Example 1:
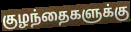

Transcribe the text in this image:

குழந்தைகளுக்கு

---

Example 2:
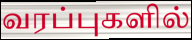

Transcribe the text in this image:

வரப்புகளில்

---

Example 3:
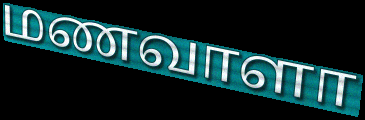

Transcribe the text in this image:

மணவாளா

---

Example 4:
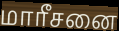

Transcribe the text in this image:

மாரீசனை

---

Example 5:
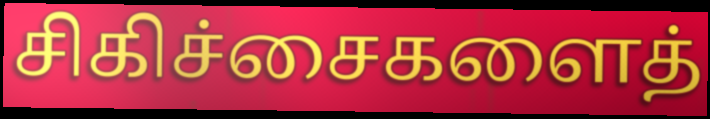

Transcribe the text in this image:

சிகிச்சைகளைத்